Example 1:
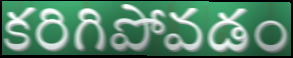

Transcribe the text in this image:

కరిగిపోవడం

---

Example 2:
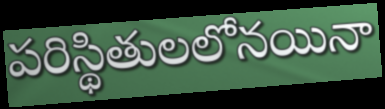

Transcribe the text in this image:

పరిస్థితులలోనయినా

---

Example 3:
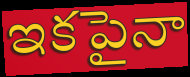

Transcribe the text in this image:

ఇకపైనా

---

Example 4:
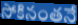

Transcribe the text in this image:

సోకినంతనే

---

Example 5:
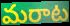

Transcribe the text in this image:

మరాట